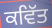
ਕਵਿੱਤ